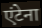
एंटेना